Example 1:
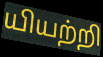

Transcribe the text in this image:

யியற்றி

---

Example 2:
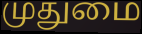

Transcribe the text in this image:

முதுமை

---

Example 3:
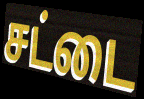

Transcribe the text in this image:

சட்டை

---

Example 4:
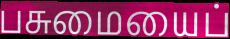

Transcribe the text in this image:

பசுமையைப்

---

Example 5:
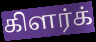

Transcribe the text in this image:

கிளர்க்